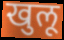
खुलू